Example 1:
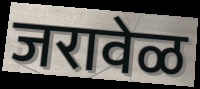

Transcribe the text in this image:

जरावेळ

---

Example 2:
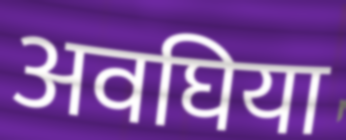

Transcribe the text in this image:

अवघिया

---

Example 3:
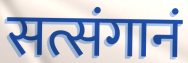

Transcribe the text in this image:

सत्संगानं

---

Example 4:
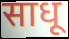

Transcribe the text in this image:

साधू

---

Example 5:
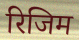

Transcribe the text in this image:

रिजिम